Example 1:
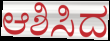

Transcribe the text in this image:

ಆಶಿಸಿದ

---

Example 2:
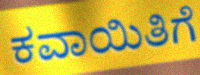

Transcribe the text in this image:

ಕವಾಯಿತಿಗೆ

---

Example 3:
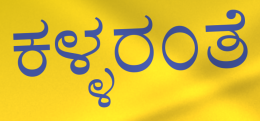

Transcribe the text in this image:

ಕಳ್ಳರಂತೆ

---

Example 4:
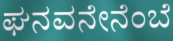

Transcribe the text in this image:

ಘನವನೇನೆಂಬೆ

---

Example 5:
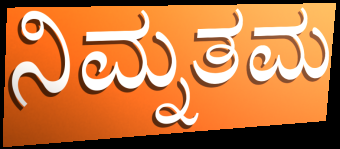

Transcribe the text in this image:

ನಿಮ್ನತಮ